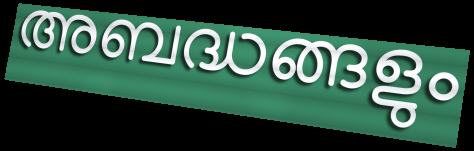
അബദ്ധങ്ങളും